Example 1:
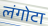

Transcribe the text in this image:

लंगोटा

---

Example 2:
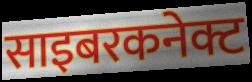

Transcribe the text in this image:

साइबरकनेक्ट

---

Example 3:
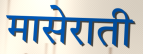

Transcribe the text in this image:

मासेराती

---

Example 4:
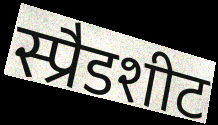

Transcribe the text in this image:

स्प्रैडशीट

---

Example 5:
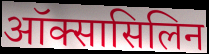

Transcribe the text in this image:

ऑक्सासिलिन